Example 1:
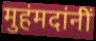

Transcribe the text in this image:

मुहंमदांनीं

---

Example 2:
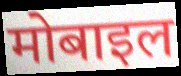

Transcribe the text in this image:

मोबाइल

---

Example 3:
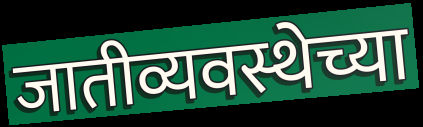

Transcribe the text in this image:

जातीव्यवस्थेच्या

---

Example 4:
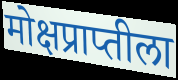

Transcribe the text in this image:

मोक्षप्राप्तीला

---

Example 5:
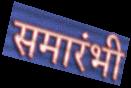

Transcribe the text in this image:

समारंभी